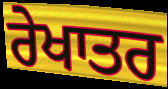
ਰੇਖਾਤਰ